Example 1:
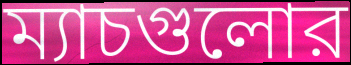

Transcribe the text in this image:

ম্যাচগুলোর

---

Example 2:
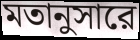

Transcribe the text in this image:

মতানুসারে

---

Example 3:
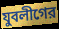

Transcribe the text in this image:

যুবলীগের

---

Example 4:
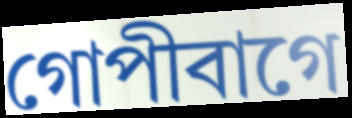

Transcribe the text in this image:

গোপীবাগে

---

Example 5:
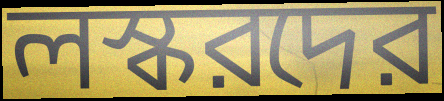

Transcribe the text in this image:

লস্করদের